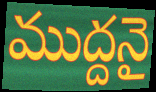
ముద్దనై